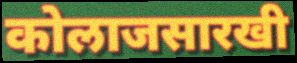
कोलाजसारखी